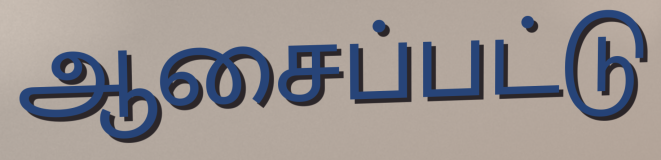
ஆசைப்பட்டு